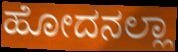
ಹೋದನಲ್ಲಾ